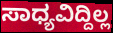
ಸಾಧ್ಯವಿದ್ದಿಲ್ಲ